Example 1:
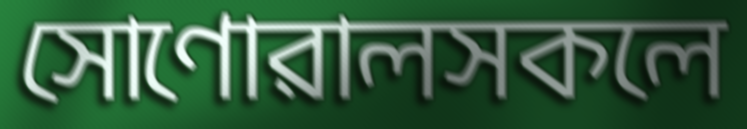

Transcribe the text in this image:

সোণোৱালসকলে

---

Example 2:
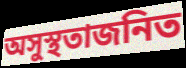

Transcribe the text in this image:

অসুস্থতাজনিত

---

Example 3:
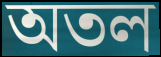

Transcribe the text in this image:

অতল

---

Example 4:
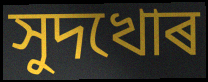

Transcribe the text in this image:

সুদখোৰ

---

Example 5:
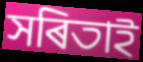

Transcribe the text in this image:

সৰিতাই